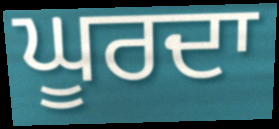
ਘੂਰਦਾ